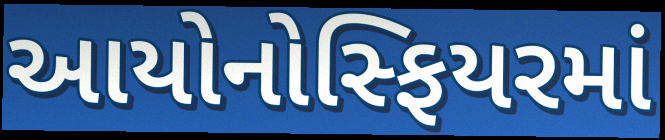
આયોનોસ્ફિયરમાં